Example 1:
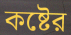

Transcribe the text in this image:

কষ্টের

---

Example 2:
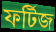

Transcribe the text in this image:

ফর্টিজ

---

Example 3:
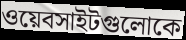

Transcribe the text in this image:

ওয়েবসাইটগুলোকে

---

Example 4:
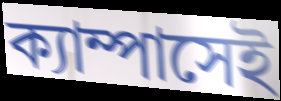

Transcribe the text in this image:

ক্যাম্পাসেই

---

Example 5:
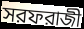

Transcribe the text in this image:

সরফরাজী